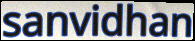
sanvidhan